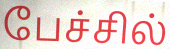
பேச்சில்